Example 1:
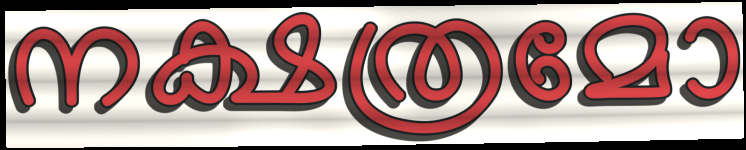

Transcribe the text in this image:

നക്ഷത്രമോ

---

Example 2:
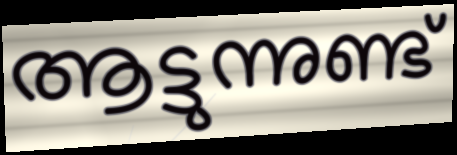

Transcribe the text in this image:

ആട്ടുന്നുണ്ട്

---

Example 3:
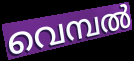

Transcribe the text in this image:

വെമ്പൽ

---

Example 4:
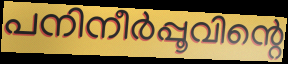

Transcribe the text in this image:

പനിനീർപ്പൂവിന്റെ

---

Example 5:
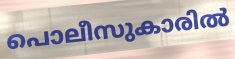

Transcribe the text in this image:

പൊലീസുകാരിൽ